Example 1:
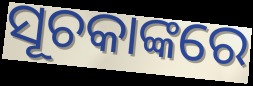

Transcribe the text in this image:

ସୂଚକାଙ୍କରେ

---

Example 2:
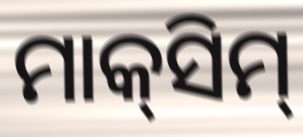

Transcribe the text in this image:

ମାକ୍‍ସିମ୍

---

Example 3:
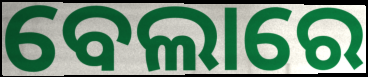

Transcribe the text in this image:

ବେଲାରେ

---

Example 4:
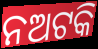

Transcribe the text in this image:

ନଅଟକି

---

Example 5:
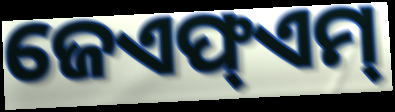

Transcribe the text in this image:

ଜେଏଫ୍ଏମ୍